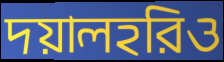
দয়ালহরিও